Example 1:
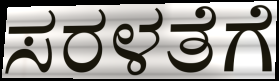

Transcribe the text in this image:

ಸರಳತೆಗೆ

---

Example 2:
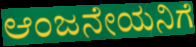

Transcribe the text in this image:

ಆಂಜನೇಯನಿಗೆ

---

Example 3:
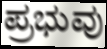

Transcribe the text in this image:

ಪ್ರಭುವು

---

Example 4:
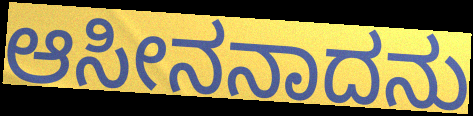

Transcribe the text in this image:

ಆಸೀನನಾದನು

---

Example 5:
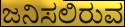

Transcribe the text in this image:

ಜನಿಸಲಿರುವ